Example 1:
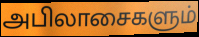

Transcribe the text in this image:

அபிலாசைகளும்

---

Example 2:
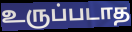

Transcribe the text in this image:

உருப்படாத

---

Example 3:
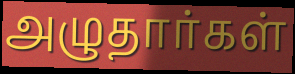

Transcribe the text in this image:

அழுதார்கள்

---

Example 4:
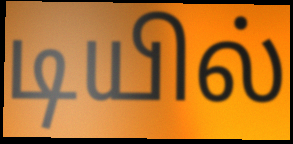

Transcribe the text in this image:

டியில்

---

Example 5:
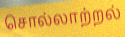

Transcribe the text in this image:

சொல்லாற்றல்